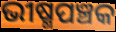
ଭୀଷ୍ମପଞ୍ଚକ